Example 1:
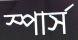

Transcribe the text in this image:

স্পার্স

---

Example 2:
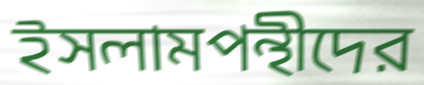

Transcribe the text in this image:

ইসলামপন্থীদের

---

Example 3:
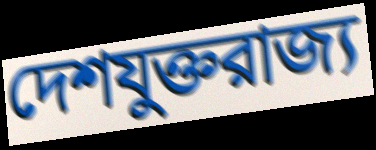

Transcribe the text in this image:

দেশযুক্তরাজ্য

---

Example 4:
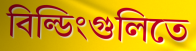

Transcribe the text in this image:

বিল্ডিংগুলিতে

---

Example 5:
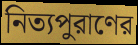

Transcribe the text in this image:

নিত্যপুরাণের